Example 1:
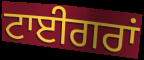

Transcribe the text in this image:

ਟਾਈਗਰਾਂ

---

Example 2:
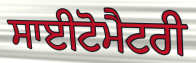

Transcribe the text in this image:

ਸਾਈਟੋਮੈਟਰੀ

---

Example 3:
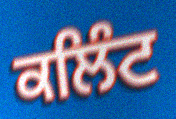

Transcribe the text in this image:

ਕਲਿੰਟ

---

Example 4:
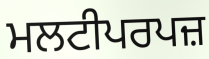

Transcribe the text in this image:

ਮਲਟੀਪਰਪਜ਼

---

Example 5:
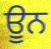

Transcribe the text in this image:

ਊਨ